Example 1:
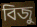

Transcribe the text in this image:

বিজু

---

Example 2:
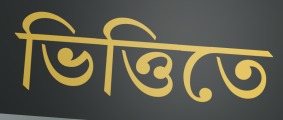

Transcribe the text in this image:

ভিত্তিতে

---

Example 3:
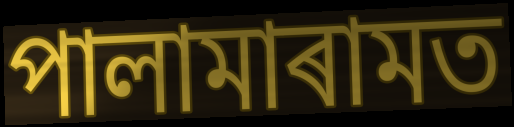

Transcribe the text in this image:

পালামাৰামত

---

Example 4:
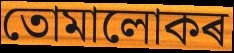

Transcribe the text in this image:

তোমালোকৰ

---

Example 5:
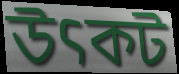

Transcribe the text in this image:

উৎকট